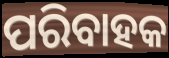
ପରିବାହକ